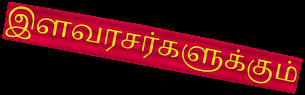
இளவரசர்களுக்கும்